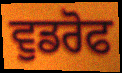
ਵੁਡਰੋਫ